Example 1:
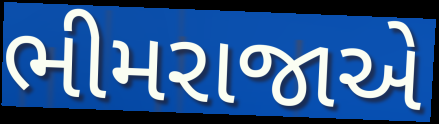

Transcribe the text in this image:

ભીમરાજાએ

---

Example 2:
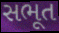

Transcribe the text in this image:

સભૂત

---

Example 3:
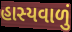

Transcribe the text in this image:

હાસ્યવાળું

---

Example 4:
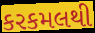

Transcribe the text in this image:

કરકમલથી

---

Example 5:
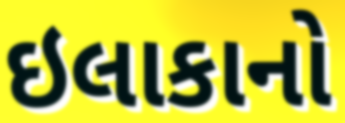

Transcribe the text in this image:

ઇલાકાનો